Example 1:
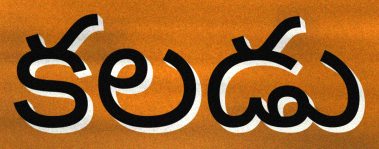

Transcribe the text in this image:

కలడు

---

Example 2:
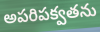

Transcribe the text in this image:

అపరిపక్వతను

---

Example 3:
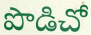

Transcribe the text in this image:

పొడిచో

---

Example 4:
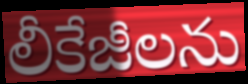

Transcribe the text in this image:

లీకేజీలను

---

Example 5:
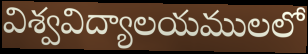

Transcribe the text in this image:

విశ్వవిద్యాలయములలో